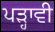
ਪੜ੍ਹਾਵੀ